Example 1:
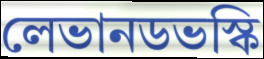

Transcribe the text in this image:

লেভানডভস্কি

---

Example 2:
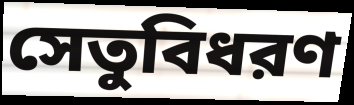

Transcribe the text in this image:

সেতুবিধরণ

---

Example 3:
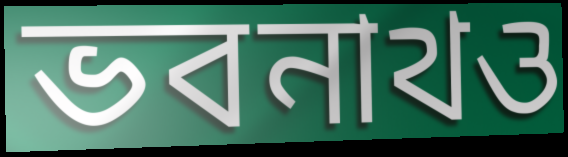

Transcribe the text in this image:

ভবনাথও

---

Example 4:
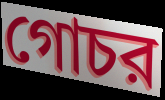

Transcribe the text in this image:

গোচর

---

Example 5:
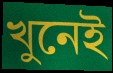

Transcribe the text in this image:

খুনেই